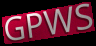
GPWS